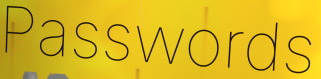
Passwords